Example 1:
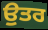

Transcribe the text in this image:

ਉੁਤਰ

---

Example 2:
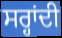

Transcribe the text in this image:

ਸਰ੍ਹਾਂਦੀ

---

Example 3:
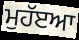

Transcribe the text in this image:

ਮੁਹੱੲਆ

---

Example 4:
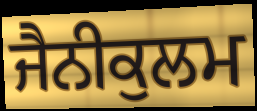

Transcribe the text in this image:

ਜੈਨੀਕੁਲਮ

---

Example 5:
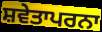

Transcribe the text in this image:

ਸ਼ਵੇਤਾਪਰਨਾ